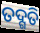
ତଦ୍ଗତି